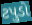
ટપુડો